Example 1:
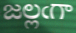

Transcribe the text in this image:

జల్లఁగా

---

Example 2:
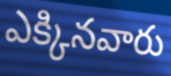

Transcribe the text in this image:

ఎక్కినవారు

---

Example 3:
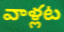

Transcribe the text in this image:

వాళ్లట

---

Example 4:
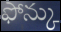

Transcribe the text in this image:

ఫోన్కు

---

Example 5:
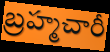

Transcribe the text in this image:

బ్రహ్మచారీ